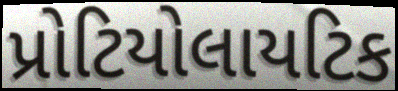
પ્રોટિયોલાયટિક